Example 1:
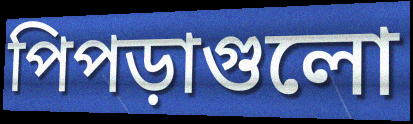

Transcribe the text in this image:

পিপড়াগুলো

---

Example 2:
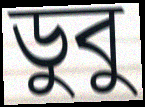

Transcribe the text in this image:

ডুবু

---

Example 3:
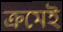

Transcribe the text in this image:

ক্রমেই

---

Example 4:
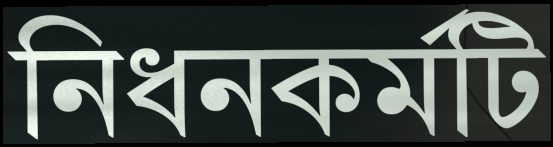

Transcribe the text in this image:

নিধনকর্মটি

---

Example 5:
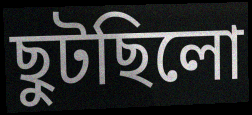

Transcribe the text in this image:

ছুটছিলো